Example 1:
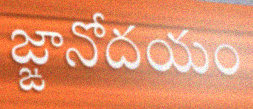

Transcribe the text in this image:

జ్ఙానోదయం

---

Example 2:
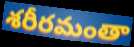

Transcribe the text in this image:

శరీరమంతా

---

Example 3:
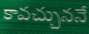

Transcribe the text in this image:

కావచ్చుననే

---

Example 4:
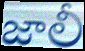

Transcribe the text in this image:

జాలీ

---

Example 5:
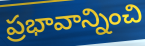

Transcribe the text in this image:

ప్రభావాన్నించి